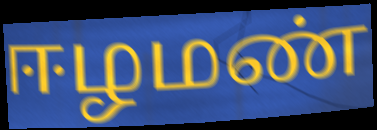
ஈழமண்